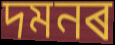
দমনৰ